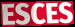
ESCES